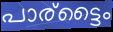
പാര്ട്ടൈം